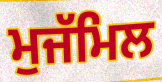
ਮੁਜੱਮਿਲ